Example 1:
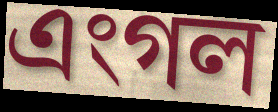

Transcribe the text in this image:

এংগল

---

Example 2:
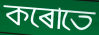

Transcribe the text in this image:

কৰোতে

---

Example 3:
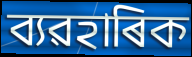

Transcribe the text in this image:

ব্যৱহাৰিক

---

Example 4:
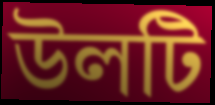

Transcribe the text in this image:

উলটি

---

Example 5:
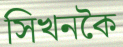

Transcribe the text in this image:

সিখনকৈ